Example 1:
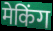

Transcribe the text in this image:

मेकिंग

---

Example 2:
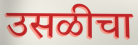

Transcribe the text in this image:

उसळीचा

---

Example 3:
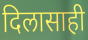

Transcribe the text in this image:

दिलासाही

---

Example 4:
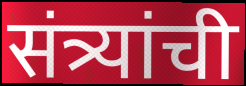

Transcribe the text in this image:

संत्र्यांची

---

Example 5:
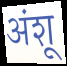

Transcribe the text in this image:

अंशू